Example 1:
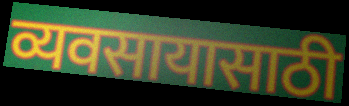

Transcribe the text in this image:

व्यवसायासाठी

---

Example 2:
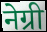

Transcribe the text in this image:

नेग्री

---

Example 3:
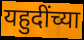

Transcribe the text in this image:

यहुदींच्या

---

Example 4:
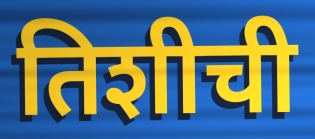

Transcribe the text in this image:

तिशीची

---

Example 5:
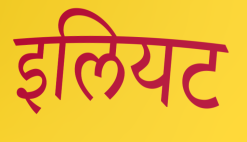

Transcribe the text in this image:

इलियट